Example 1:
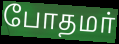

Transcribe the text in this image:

போதமர்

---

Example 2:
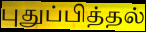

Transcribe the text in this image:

புதுப்பித்தல்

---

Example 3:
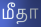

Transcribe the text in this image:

மீதா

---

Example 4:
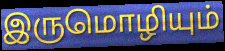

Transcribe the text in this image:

இருமொழியும்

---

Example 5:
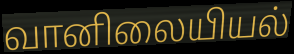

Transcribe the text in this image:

வானிலையியல்